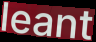
leant